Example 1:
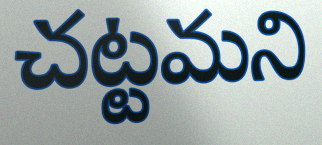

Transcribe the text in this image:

చట్టమని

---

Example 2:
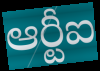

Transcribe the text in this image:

ఆర్టీఐ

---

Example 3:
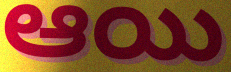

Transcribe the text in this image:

ఆయి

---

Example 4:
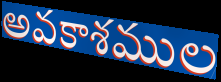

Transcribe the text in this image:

అవకాశముల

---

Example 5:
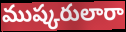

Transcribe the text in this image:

ముష్కరులారా